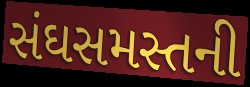
સંઘસમસ્તની